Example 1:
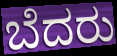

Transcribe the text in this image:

ಬೆದರು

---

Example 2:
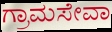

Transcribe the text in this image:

ಗ್ರಾಮಸೇವಾ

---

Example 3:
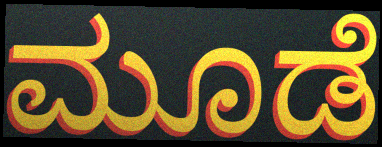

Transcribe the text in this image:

ಮೂಡೆ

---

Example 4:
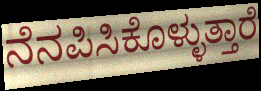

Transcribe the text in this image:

ನೆನಪಿಸಿಕೊಳ್ಳುತ್ತಾರೆ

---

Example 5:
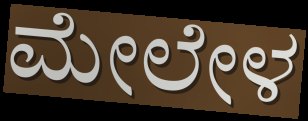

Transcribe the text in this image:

ಮೇಲೇಳ